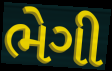
ભેગી